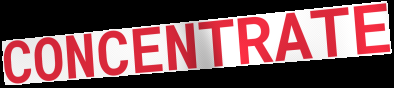
CONCENTRATE